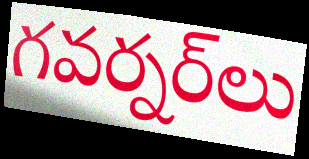
గవర్నర్‌లు